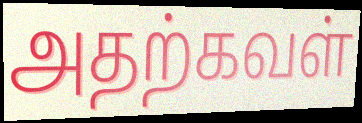
அதற்கவள்